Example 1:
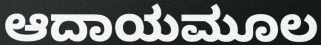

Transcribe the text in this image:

ಆದಾಯಮೂಲ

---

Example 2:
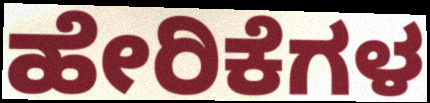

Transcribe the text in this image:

ಹೇರಿಕೆಗಳ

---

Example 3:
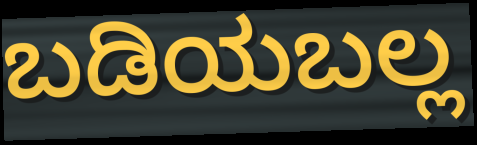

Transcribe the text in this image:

ಬಡಿಯಬಲ್ಲ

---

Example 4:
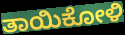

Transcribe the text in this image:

ತಾಯಿಕೋಳಿ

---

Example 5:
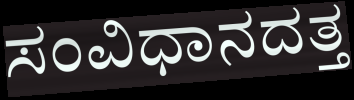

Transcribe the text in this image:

ಸಂವಿಧಾನದತ್ತ